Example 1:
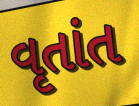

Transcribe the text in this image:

વૃતાંત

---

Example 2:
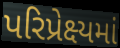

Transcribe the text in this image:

પરિપ્રેક્ષ્યમાં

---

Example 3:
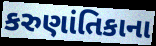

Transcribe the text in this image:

કરુણાંતિકાના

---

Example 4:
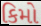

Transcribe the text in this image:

કિમો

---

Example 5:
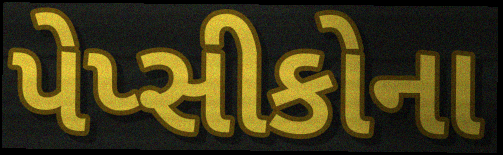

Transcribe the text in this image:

પેપ્સીકોના